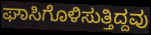
ಘಾಸಿಗೊಳಿಸುತ್ತಿದ್ದವು